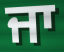
ਜਾ